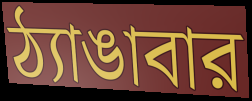
ঠ্যাঙাবার